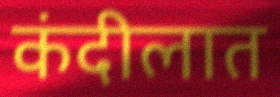
कंदीलात